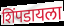
शिंपडायला